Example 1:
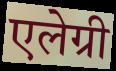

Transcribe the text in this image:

एलेग्री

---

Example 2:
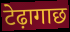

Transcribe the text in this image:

टेढ़ागाछ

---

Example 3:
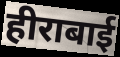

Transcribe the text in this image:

हीराबाई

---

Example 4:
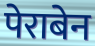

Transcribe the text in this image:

पेराबेन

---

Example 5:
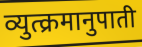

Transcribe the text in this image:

व्युत्क्रमानुपाती